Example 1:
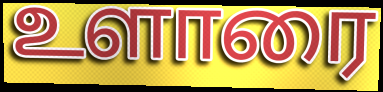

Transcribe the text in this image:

உளாரை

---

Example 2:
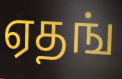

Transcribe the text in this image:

ஏதங்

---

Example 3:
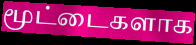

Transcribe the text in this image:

மூட்டைகளாக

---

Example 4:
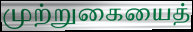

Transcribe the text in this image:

முற்றுகையைத்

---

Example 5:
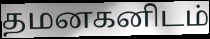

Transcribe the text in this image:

தமனகனிடம்